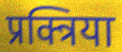
प्रक्त्रिया